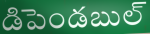
డిపెండబుల్